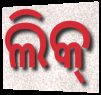
ଲିକ୍